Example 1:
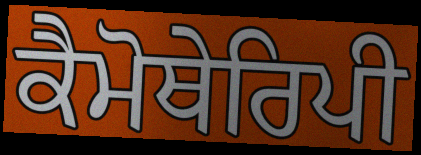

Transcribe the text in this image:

ਕੈਮੋਥੇਰਿਪੀ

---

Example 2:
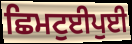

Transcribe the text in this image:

ਛਿਮਟੁਈਪੁਈ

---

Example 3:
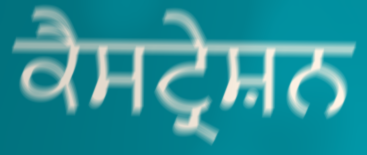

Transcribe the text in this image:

ਕੈਸਟ੍ਰੇਸ਼ਨ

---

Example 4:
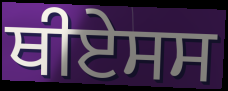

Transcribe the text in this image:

ਥੀਏਸਸ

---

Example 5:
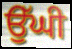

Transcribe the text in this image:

ਉੱਘੀ